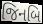
જિનબિ